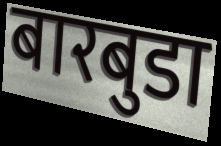
बारबुडा